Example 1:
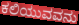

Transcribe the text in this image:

ಕಲಿಯುವವನು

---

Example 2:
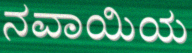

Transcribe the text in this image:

ನವಾಯಿಯ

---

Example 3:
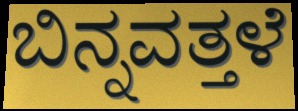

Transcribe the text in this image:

ಬಿನ್ನವತ್ತಳೆ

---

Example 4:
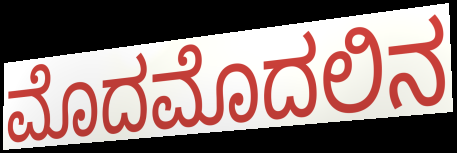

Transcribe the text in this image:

ಮೊದಮೊದಲಿನ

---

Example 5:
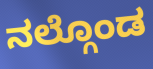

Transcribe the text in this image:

ನಲ್ಗೊಂಡ